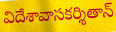
విదేశావాసకర్శితాన్